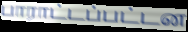
பாராட்டப்பட்டன